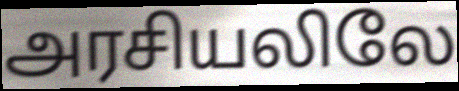
அரசியலிலே